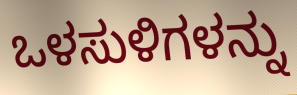
ಒಳಸುಳಿಗಳನ್ನು